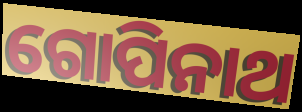
ଗୋପିନାଥ